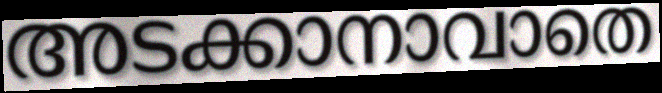
അടക്കാനാവാതെ